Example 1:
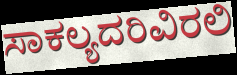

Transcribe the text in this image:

ಸಾಕಲ್ಯದರಿವಿರಲಿ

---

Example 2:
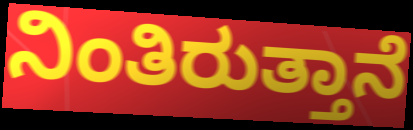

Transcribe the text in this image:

ನಿಂತಿರುತ್ತಾನೆ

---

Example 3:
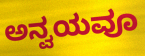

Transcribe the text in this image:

ಅನ್ವಯವೂ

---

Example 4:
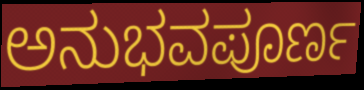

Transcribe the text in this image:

ಅನುಭವಪೂರ್ಣ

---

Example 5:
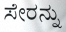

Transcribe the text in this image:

ಸೇರನ್ನು